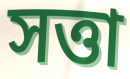
সত্তা